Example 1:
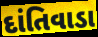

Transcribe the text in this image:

દાંતિવાડા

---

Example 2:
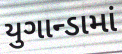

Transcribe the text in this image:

યુગાન્ડામાં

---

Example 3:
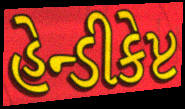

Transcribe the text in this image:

હેન્ડીકેપ્ટ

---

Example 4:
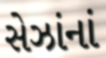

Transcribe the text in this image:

સેઝાંનાં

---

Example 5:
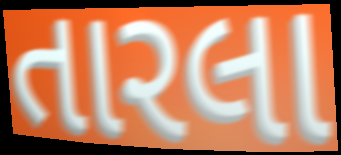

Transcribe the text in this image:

તારલા